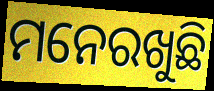
ମନେରଖୁଛି